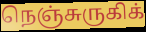
நெஞ்சுருகிக்